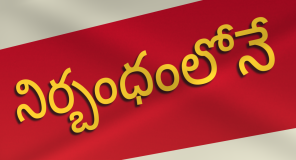
నిర్బంధంలోనే